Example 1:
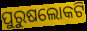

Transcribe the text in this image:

ପୁରୁଷଲୋକଟି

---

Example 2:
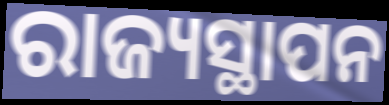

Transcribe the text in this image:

ରାଜ୍ୟସ୍ଥାପନ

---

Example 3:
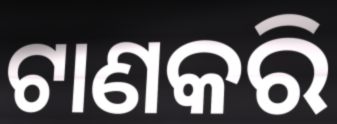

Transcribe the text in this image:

ଟାଣକରି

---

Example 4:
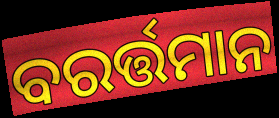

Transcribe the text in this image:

ବରର୍ତ୍ତମାନ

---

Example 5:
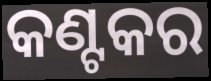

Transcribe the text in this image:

କଣ୍ଟକର